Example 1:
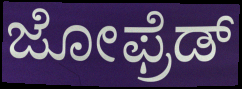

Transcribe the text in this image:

ಜೋಫ್ರೆಡ್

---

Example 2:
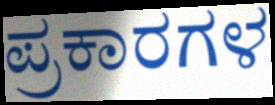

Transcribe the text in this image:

ಪ್ರಕಾರಗಳ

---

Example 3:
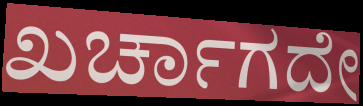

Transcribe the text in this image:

ಖರ್ಚಾಗದೇ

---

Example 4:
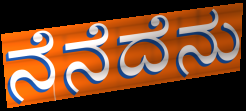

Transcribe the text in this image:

ನೆನೆದೆನು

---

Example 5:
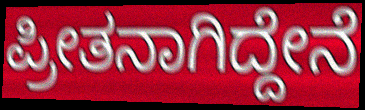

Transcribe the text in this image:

ಪ್ರೀತನಾಗಿದ್ದೇನೆ